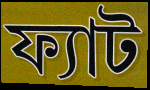
ফ্যাট